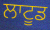
ਲਾਟੂਡ